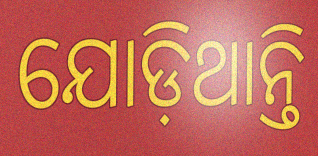
ଯୋଡ଼ିଥାନ୍ତି